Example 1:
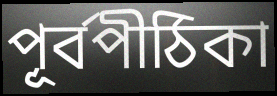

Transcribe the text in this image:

পূর্বপীঠিকা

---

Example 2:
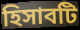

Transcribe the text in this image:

হিসাবটি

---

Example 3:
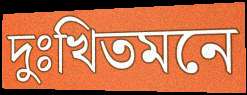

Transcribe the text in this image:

দুঃখিতমনে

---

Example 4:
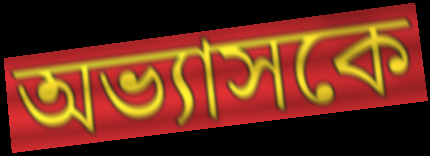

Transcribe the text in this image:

অভ্যাসকে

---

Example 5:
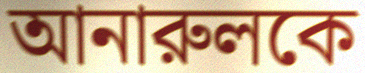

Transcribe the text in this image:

আনারুলকে